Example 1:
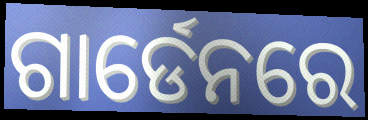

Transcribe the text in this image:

ଗାର୍ଡେନରେ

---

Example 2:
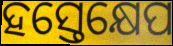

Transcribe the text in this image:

ହସ୍ତେକ୍ଷେପ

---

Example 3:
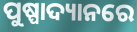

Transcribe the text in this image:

ପୁଷ୍ପାଦ୍ୟାନରେ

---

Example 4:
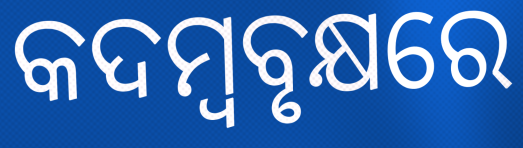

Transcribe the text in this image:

କଦମ୍ୱବୃକ୍ଷରେ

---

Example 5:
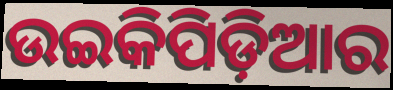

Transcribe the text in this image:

ଉଇକିପିଡ଼ିଆର